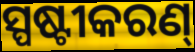
ସ୍ପଷ୍ଟୀକରଣ୍